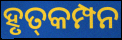
ହୃତ୍‌କମ୍ପନ